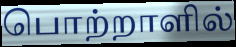
பொற்றாளில்